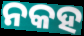
ନକହ